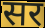
सर